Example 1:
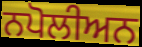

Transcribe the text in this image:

ਨਪੋਲੀਅਨ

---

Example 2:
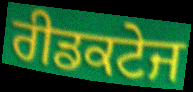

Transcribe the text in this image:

ਰੀਡਕਟੇਜ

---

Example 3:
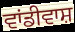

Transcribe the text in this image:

ਵਾਂਡੀਵਾਸ਼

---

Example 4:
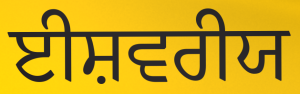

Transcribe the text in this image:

ਈਸ਼ਵਰੀਯ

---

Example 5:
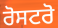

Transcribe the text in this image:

ਰੋਸਟਰੋ